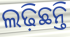
ଲଢ଼ିଛନ୍ତି